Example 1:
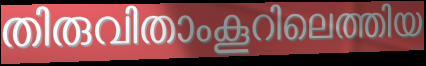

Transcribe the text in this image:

തിരുവിതാംകൂറിലെത്തിയ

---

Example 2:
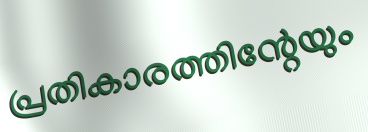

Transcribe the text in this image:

പ്രതികാരത്തിന്റേയും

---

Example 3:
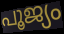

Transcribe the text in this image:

പൂജ്യം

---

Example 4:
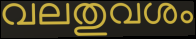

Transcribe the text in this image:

വലതുവശം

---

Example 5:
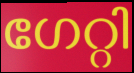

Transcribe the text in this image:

ഗേറ്റി